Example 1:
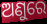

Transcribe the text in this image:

ଅଣୁରେ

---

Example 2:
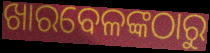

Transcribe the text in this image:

ଖାରବେଳଙ୍କଠାରୁ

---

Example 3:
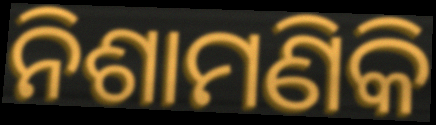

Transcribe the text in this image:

ନିଶାମଣିକି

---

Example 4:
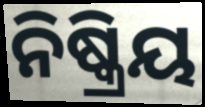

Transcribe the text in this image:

ନିଷ୍କ୍ରିୟ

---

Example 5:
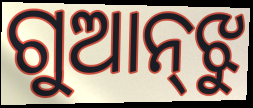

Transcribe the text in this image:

ଗୁଆନ୍‌ଝୁ